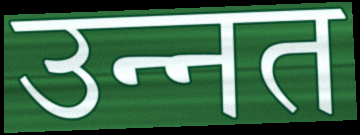
उन्‍नत